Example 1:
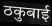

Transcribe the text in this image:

ठकुबाई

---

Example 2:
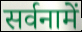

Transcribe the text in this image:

सर्वनामें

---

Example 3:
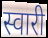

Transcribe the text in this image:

स्वारी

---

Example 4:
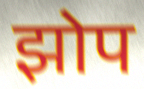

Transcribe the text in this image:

झोप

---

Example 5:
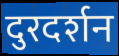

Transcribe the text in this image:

दुरदर्शन